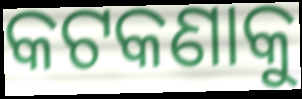
କଟକଣାକୁ